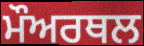
ਮੌਅਰਥਲ